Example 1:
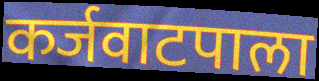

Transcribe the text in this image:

कर्जवाटपाला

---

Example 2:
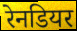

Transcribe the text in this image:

रेनडियर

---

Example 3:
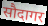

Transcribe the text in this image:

सौदागर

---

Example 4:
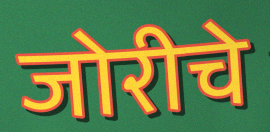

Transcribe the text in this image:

जोरीचे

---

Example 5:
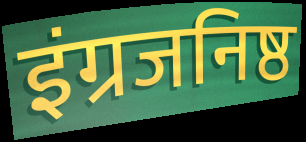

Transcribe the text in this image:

इंग्रजनिष्ठ